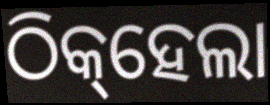
ଠିକ୍‌ହେଲା